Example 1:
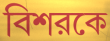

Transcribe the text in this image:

বিশরকে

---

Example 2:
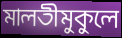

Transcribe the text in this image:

মালতীমুকুলে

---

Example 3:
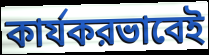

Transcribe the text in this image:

কার্যকরভাবেই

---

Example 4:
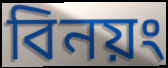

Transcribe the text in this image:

বিনয়ং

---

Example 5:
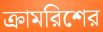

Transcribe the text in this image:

ক্রামরিশের